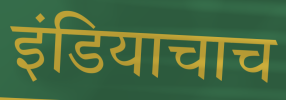
इंडियाचाच